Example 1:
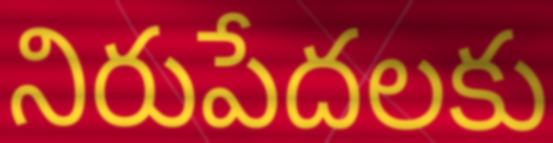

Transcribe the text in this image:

నిరుపేదలకు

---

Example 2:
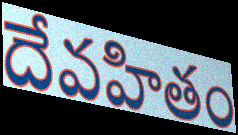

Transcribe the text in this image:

దేవహితం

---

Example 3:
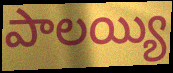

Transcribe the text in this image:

పాలయ్యి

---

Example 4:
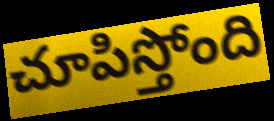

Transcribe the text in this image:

చూపిస్తోంది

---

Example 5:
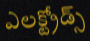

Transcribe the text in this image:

ఎలక్ట్రోడ్స్